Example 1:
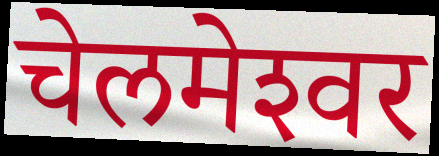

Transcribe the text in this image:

चेलमेश्‍वर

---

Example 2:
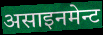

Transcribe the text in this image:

असाइनमेन्ट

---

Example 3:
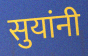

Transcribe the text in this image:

सुयांनी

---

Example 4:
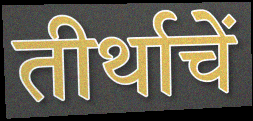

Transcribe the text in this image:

तीर्थाचें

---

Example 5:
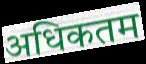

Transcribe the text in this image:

अधिकतम